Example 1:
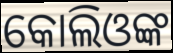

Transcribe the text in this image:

କୋଲିଓଙ୍କ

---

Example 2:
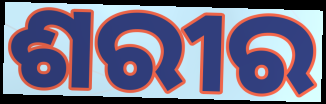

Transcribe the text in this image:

ଶରୀର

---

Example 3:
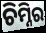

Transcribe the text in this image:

ଚିମ୍ନିର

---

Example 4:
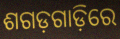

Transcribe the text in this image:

ଶଗଡ଼ଗାଡ଼ିରେ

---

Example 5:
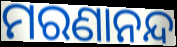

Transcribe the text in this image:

ମରଣାନନ୍ଦ